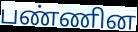
பண்ணின